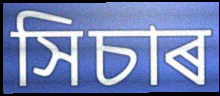
সিচাৰ